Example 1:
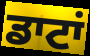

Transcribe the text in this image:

ਡਾਟਾਂ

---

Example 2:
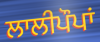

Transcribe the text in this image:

ਲਾਲੀਪੌਪਾਂ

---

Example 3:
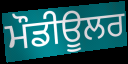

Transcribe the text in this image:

ਮੌਡੀਊਲਰ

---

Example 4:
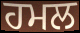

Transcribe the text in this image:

ਹਮਲ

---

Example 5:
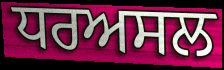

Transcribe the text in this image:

ਧਰਅਸਲ